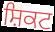
ਸ਼ਿਕਟ